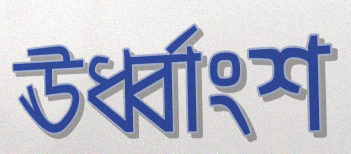
ঊর্ধ্বাংশ